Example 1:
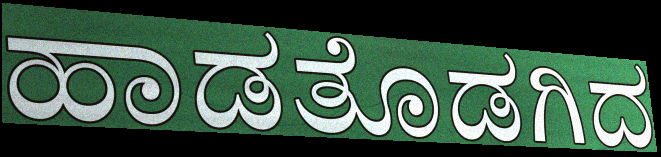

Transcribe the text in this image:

ಹಾಡತೊಡಗಿದ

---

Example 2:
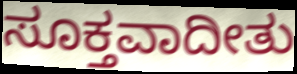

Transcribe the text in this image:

ಸೂಕ್ತವಾದೀತು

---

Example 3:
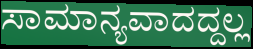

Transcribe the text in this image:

ಸಾಮಾನ್ಯವಾದದ್ದಲ್ಲ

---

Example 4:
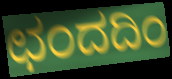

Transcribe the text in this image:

ಛಂದದಿಂ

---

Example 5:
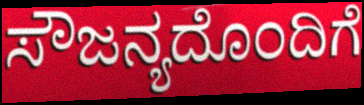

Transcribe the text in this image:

ಸೌಜನ್ಯದೊಂದಿಗೆ